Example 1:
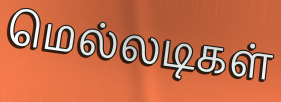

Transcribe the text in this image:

மெல்லடிகள்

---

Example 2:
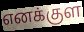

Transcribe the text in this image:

எனக்குள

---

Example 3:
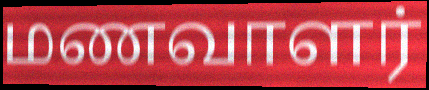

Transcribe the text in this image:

மணவாளர்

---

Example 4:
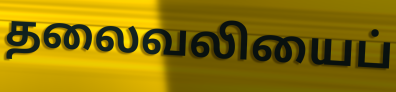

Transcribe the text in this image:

தலைவலியைப்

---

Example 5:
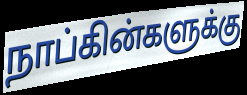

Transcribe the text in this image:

நாப்கின்களுக்கு